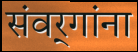
संवर्गांना